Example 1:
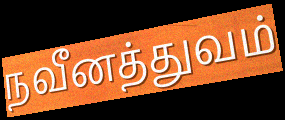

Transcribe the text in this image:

நவீனத்துவம்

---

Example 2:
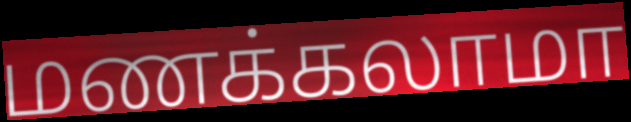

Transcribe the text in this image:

மணக்கலாமா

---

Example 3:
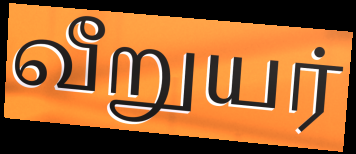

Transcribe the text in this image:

வீறுயர்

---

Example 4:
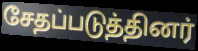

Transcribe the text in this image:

சேதப்படுத்தினர்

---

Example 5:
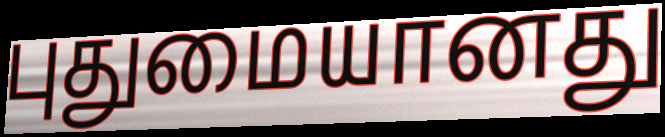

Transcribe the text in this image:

புதுமையானது